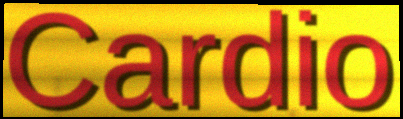
Cardio